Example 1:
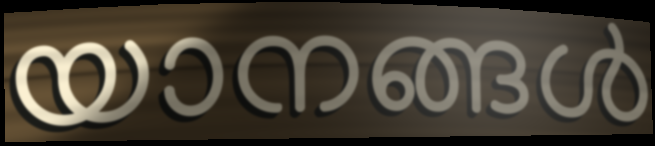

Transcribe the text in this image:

യാനങ്ങൾ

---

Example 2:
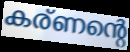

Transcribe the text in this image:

കര്ണന്റെ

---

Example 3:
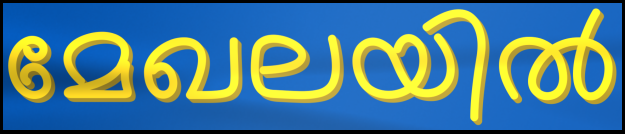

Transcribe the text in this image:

മേഖലയിൽ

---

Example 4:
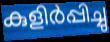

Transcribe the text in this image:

കുളിർപ്പിച്ചു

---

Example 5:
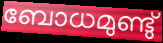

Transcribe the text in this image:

ബോധമുണ്ടു്